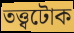
তত্ত্বটোক